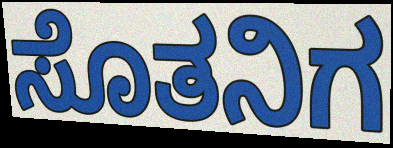
ಸೊತನಿಗ